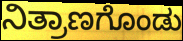
ನಿತ್ರಾಣಗೊಂಡು